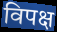
विपक्ष